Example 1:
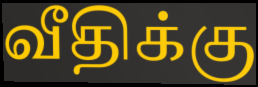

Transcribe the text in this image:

வீதிக்கு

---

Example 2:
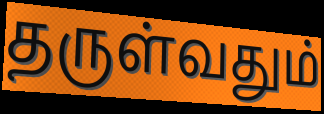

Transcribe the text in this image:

தருள்வதும்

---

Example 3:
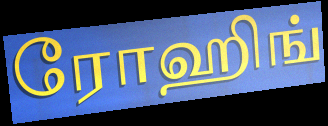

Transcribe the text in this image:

ரோஹிங்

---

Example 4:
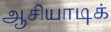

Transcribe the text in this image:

ஆசியாடிக்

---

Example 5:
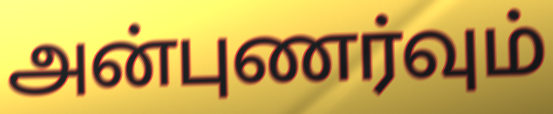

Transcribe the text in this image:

அன்புணர்வும்